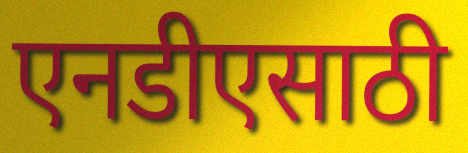
एनडीएसाठी